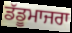
ਡੱਡੂਮਾਜਰਾ